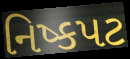
નિષ્કપટ